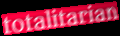
totalitarian